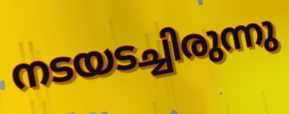
നടയടച്ചിരുന്നു